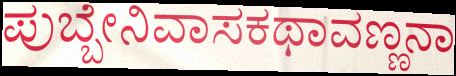
ಪುಬ್ಬೇನಿವಾಸಕಥಾವಣ್ಣನಾ